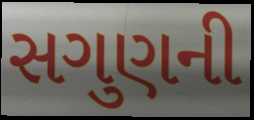
સગુણની